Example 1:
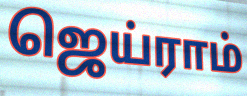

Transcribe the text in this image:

ஜெய்ராம்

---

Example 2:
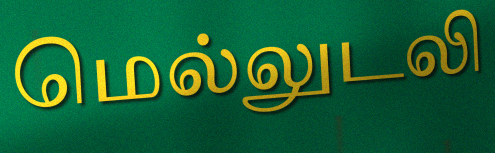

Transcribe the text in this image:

மெல்லுடலி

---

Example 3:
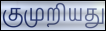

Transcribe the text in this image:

குமுறியது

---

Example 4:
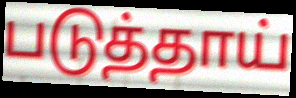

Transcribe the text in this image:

படுத்தாய்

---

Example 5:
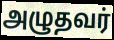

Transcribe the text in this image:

அழுதவர்